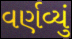
વર્ણવ્યું